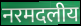
नरमदलीय